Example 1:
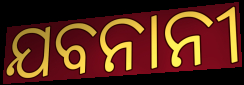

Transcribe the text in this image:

ଯବନାନୀ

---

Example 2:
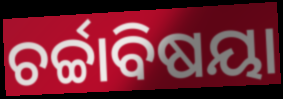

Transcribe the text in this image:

ଚର୍ଚ୍ଚାବିଷୟା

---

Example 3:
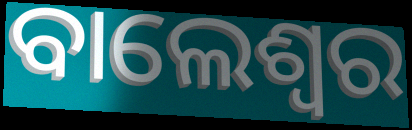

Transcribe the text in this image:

ବାଲେଶ୍ବର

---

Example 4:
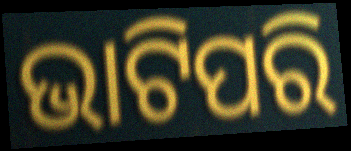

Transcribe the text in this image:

ଭାଟିପରି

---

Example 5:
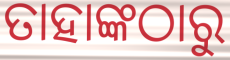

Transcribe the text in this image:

ତାହାଙ୍କଠାରୁ